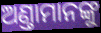
ଅଣ୍ତାମାନଙ୍କୁ